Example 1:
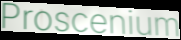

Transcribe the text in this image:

Proscenium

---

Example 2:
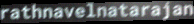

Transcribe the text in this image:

rathnavelnatarajan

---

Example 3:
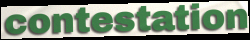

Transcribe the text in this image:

contestation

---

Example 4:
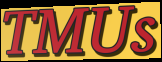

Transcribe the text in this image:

TMUs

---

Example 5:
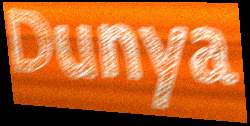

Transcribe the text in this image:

Dunya